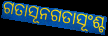
ଗତାସୂନଗତାସୂଂଶ୍ଚ